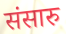
संसारु